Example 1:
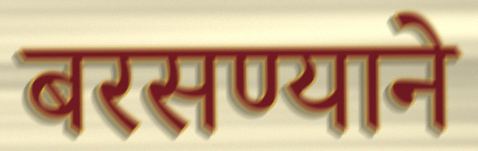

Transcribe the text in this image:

बरसण्याने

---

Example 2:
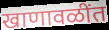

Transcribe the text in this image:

खाणावळींत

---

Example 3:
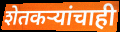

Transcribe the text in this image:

शेतकऱ्यांचाही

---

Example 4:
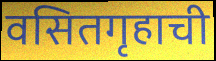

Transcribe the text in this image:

वसितगृहाची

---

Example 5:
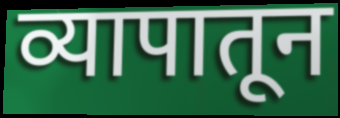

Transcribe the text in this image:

व्यापातून